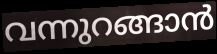
വന്നുറങ്ങാൻ